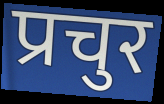
प्रचुर